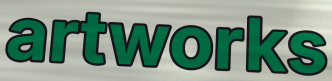
artworks